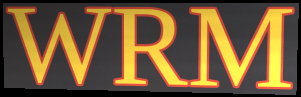
WRM